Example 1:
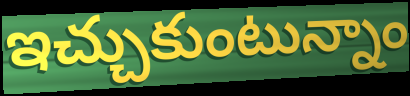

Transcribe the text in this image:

ఇచ్చుకుంటున్నాం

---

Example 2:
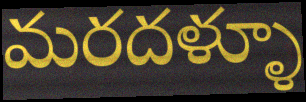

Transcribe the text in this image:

మరదళ్ళూ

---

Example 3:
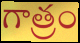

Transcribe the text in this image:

గాత్రం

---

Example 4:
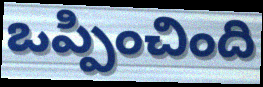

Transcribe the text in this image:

ఒప్పించింది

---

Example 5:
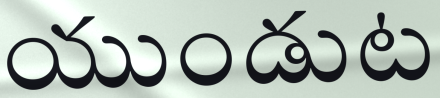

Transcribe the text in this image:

యుండుట